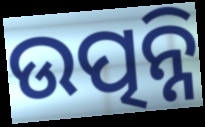
ଉତ୍ପନ୍ନି